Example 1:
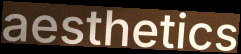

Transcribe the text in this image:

aesthetics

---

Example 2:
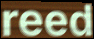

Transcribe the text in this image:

reed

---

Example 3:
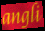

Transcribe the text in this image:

angli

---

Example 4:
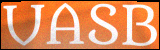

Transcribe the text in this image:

UASB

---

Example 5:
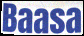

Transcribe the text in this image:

Baasa